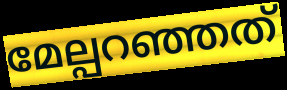
മേല്പറഞ്ഞത്